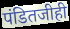
पंडितजीही